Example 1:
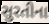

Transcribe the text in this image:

સુરતીના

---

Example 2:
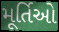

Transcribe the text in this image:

મૂર્તિઓ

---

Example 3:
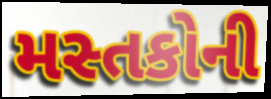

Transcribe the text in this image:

મસ્તકોની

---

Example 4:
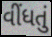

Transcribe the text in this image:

વીંધતું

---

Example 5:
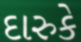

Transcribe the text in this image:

દારુકે